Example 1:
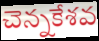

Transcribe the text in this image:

చెన్నకేశవ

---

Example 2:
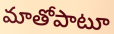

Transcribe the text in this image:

మాతోపాటూ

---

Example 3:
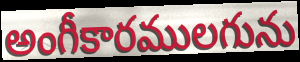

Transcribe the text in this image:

అంగీకారములగును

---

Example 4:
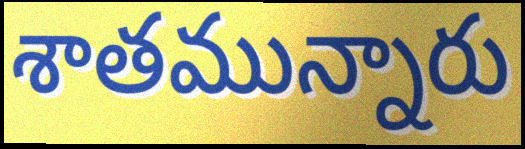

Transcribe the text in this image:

శాతమున్నారు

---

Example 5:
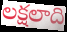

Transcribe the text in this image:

లక్షలాది